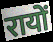
रायों